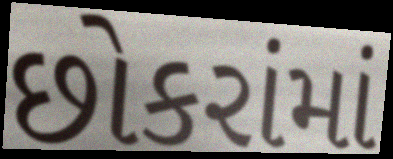
છોકરાંમાં